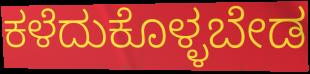
ಕಳೆದುಕೊಳ್ಳಬೇಡ